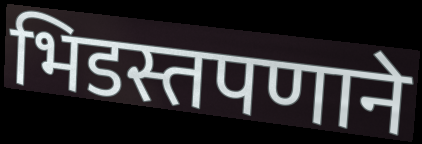
भिडस्तपणाने